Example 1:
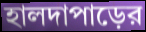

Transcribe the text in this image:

হালদাপাড়ের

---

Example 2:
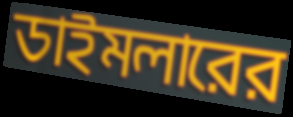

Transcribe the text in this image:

ডাইমলারের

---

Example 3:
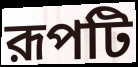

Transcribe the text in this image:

রূপটি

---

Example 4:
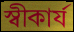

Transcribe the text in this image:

স্বীকার্য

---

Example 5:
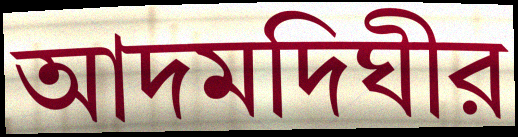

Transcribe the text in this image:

আদমদিঘীর